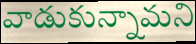
వాడుకున్నామని